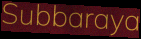
Subbaraya